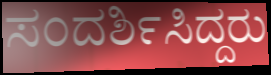
ಸಂದರ್ಶಿಸಿದ್ದರು